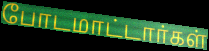
போடமாட்டார்கள்